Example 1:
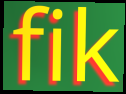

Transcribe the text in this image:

fik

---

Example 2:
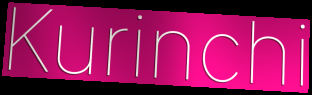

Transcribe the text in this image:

Kurinchi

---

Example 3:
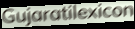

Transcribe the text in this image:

Gujaratilexicon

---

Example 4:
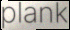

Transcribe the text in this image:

plank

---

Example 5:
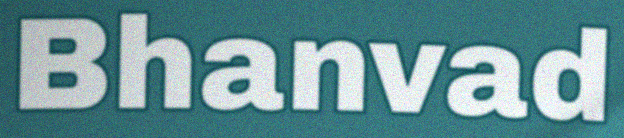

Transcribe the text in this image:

Bhanvad